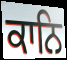
ਕਾਨਿ